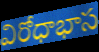
విరోధాభాస